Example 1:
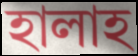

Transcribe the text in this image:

হালাহ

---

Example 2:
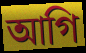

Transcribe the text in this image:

আগি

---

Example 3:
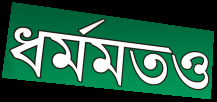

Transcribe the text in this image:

ধর্মমতও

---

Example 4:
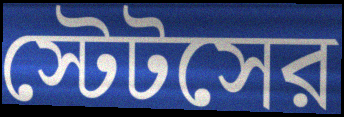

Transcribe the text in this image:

স্টেটসের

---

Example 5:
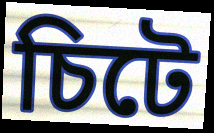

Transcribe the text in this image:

চিটে